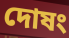
দোষং